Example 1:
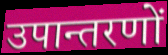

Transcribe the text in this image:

उपान्तरणों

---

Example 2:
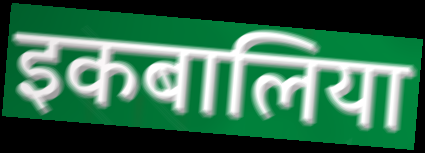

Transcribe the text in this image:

इकबालिया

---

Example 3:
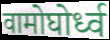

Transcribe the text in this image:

वामोघोर्ध्व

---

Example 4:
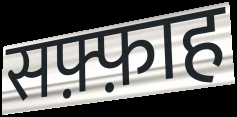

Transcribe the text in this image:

सफ़्फ़ाह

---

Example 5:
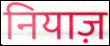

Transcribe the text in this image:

नियाज़